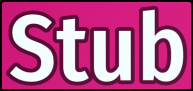
Stub